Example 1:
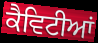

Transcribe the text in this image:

ਕੈਵਿਟੀਆਂ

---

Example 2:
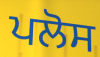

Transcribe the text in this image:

ਪਲੋਸ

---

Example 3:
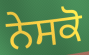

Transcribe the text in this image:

ਨੇਸਕੋ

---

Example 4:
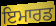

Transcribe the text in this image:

ਇਮਾਰਡ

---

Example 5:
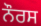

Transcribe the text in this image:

ਨੌਰਸ